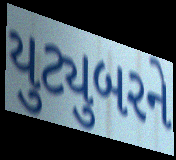
યુટ્યુબરને